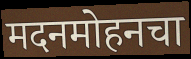
मदनमोहनचा